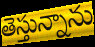
తెస్తున్నాను